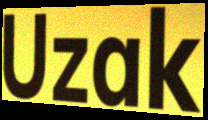
Uzak